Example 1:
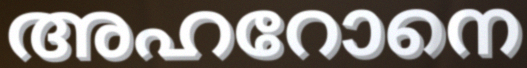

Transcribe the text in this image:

അഹറോനെ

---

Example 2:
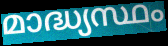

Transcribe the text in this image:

മാദ്ധ്യസ്ഥം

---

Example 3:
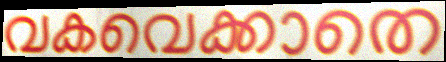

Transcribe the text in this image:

വകവെക്കാതെ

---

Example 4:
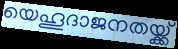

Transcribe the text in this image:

യെഹൂദാജനതയ്ക്ക്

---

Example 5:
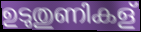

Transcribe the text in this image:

ഉടുതുണികള്